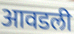
आवडली